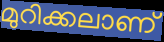
മുറിക്കലാണ്